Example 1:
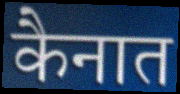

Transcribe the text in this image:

कैनात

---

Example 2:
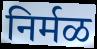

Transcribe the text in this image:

निर्मळ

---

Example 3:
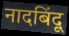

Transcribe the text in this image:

नादबिंदू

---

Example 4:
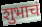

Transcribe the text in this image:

शुभाचं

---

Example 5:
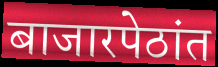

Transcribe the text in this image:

बाजारपेठांत